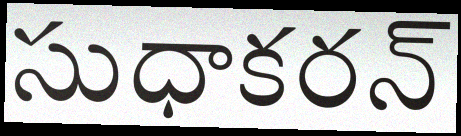
సుధాకరన్